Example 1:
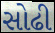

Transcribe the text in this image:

સોઢી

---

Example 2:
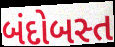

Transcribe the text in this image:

બંદોબસ્ત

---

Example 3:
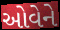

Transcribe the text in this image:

ઓવેને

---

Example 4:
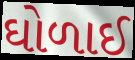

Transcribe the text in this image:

ઘોળાઈ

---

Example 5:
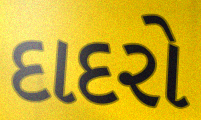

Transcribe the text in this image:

દાદરો